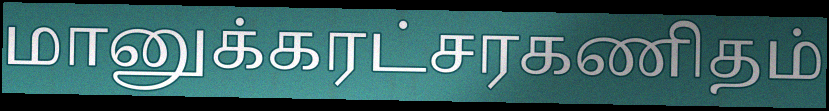
மானுக்கரட்சரகணிதம்